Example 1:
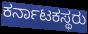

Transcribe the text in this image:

ಕರ್ನಾಟಕಸ್ಥರು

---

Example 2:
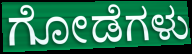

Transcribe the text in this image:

ಗೋಡೆಗಳು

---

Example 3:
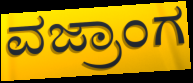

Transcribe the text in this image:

ವಜ್ರಾಂಗ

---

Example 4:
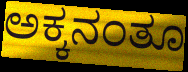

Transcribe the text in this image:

ಅಕ್ಕನಂತೂ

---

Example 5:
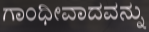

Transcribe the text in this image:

ಗಾಂಧೀವಾದವನ್ನು